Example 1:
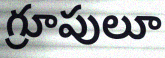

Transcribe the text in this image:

గ్రూపులూ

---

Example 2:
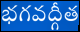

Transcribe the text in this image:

భగవద్గీత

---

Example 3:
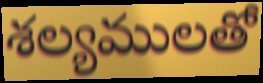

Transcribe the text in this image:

శల్యములతో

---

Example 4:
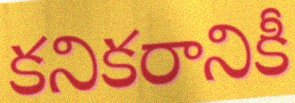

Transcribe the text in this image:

కనికరానికీ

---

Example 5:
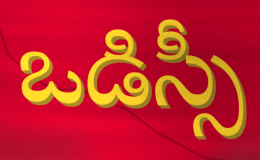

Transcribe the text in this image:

ఒడిస్సీ